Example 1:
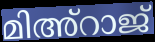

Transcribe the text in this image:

മിഅ്റാജ്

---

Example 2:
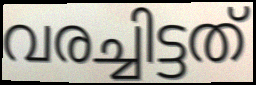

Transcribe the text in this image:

വരച്ചിട്ടത്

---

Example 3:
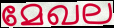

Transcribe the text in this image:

മേഖല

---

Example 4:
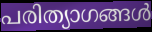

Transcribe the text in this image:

പരിത്യാഗങ്ങൾ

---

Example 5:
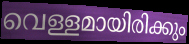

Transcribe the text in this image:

വെള്ളമായിരിക്കും